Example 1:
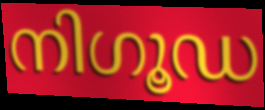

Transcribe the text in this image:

നിഗൂഡ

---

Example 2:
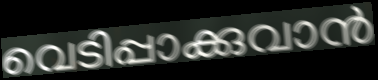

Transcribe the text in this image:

വെടിപ്പാക്കുവാൻ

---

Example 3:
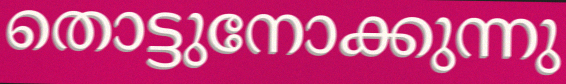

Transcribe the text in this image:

തൊട്ടുനോക്കുന്നു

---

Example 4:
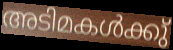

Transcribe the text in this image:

അടിമകൾക്കു്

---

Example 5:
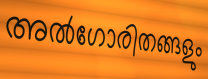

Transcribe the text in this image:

അൽഗോരിതങ്ങളും